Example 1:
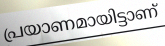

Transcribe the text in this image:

പ്രയാണമായിട്ടാണ്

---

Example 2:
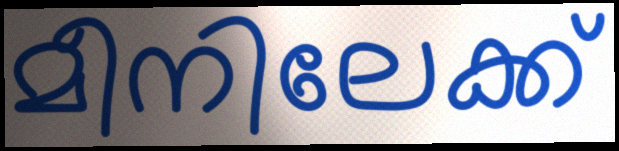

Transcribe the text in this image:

മീനിലേക്ക്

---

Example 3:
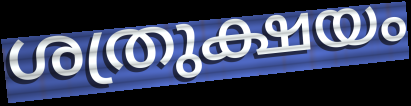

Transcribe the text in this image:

ശത്രുക്ഷയം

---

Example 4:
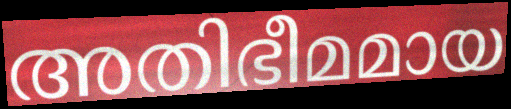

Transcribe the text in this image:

അതിഭീമമായ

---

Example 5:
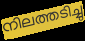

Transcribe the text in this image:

നിലത്തടിച്ചു